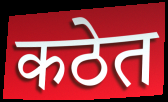
कठेत